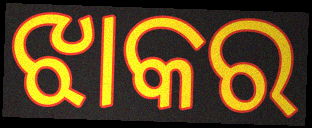
ଝାକର